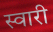
स्वारी